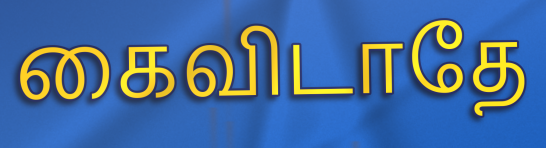
கைவிடாதே